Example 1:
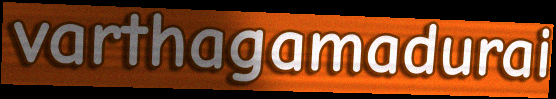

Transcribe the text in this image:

varthagamadurai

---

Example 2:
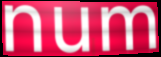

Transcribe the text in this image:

num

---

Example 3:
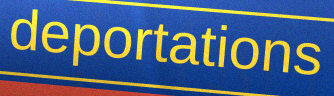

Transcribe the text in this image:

deportations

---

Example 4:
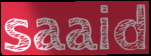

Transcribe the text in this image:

saaid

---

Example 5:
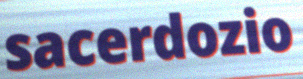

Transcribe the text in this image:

sacerdozio